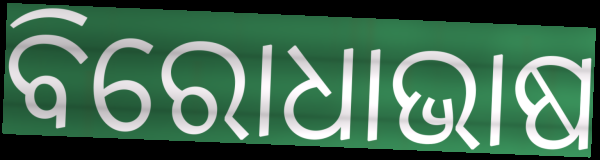
ବିରୋଧାଭାଷ